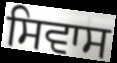
ਸਿਵਾਸ